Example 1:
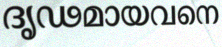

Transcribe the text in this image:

ദൃഢമായവനെ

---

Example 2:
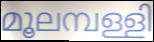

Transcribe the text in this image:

മൂലമ്പള്ളി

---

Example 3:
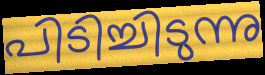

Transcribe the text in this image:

പിടിച്ചിടുന്നു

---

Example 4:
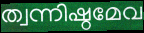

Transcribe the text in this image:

ത്വന്നിഷ്ഠമേവ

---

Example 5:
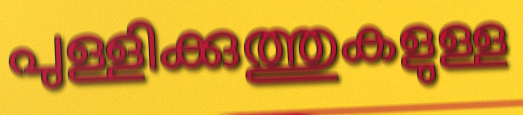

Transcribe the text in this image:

പുള്ളിക്കുത്തുകളുള്ള